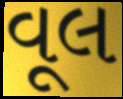
વૂલ